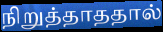
நிறுத்தாததால்